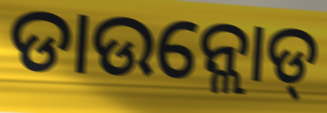
ଡାଉନ୍ଲୋଡ୍